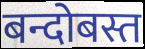
बन्दोबस्त